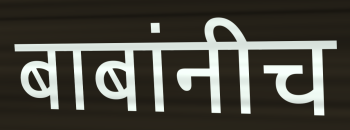
बाबांनीच